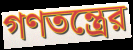
গণতন্ত্রের